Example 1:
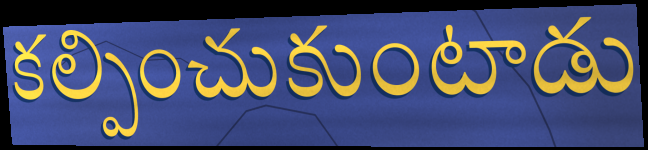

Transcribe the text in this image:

కల్పించుకుంటాడు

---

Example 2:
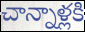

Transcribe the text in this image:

చాన్నాళ్లకి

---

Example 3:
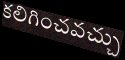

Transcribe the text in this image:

కలిగించవచ్చు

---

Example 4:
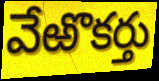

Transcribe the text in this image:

వేఱొకర్తు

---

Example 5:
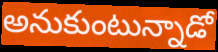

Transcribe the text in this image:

అనుకుంటున్నాడో